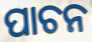
ପାଚନ